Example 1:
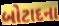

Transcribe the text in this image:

બોટાદના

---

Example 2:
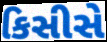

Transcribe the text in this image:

કિસીસે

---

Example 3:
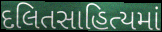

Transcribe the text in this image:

દલિતસાહિત્યમાં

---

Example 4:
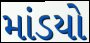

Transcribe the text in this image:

માંડયો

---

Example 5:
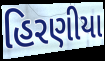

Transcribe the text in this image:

હિરણીયા